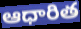
ఆధారిత